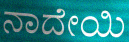
ನಾದೇಯಿ